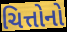
ચિત્તોનો